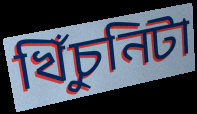
খিঁচুনিটা